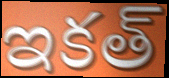
ఇకత్